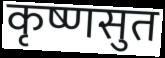
कृष्णसुत